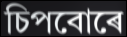
চিপবোৰে